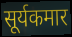
सूर्यकमार